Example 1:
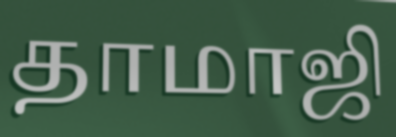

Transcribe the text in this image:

தாமாஜி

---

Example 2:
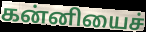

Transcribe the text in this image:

கன்னியைச்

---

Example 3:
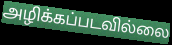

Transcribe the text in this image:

அழிக்கப்படவில்லை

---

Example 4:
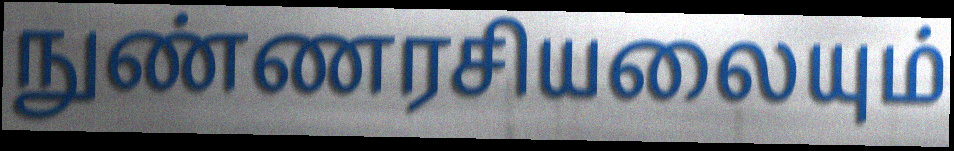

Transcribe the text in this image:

நுண்ணரசியலையும்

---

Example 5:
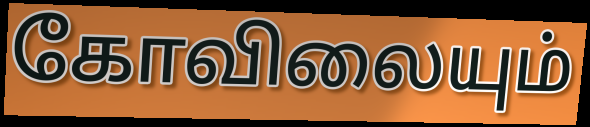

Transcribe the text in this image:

கோவிலையும்